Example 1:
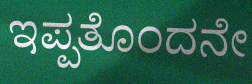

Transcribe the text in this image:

ಇಪ್ಪತೊಂದನೇ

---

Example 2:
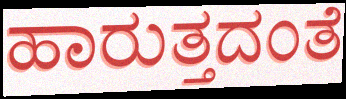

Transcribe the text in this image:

ಹಾರುತ್ತದಂತೆ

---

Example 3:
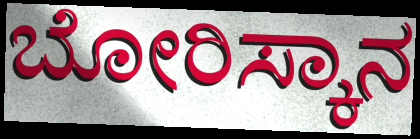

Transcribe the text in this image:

ಬೋರಿಸ್ಕಾನ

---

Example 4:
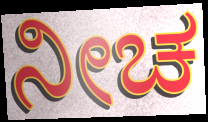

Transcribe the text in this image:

ನೀಚ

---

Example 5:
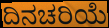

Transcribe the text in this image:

ದಿನಚರಿಯೆ